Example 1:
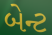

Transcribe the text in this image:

બેન્ટ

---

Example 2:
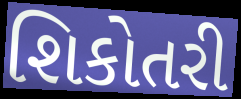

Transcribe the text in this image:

શિકોતરી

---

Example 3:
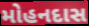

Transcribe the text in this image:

મોહનદાસ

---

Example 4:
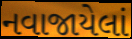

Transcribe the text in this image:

નવાજાયેલાં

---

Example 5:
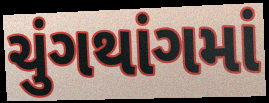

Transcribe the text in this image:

ચુંગથાંગમાં